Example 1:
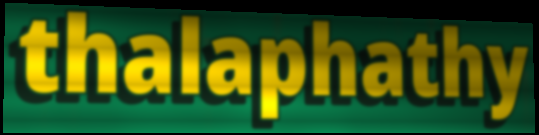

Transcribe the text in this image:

thalaphathy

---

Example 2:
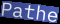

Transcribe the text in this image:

Pathe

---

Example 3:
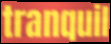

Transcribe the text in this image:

tranquil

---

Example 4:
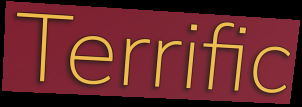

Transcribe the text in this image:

Terrific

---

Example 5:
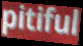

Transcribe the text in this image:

pitiful